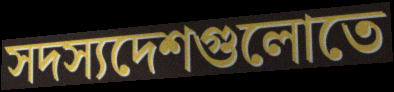
সদস্যদেশগুলোতে